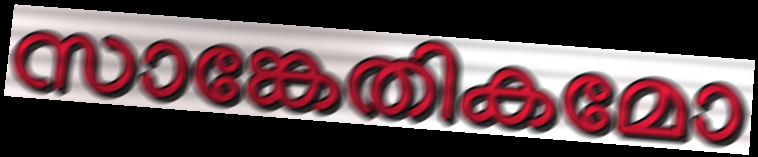
സാങ്കേതികമോ